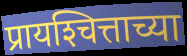
प्रायश्‍चित्ताच्या